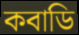
কবাডি